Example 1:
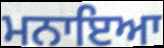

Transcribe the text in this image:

ਮਨਾਇਆ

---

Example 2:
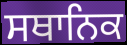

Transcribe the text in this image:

ਸਥਾਨਿਕ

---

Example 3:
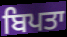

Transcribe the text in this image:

ਬਿਪਤਾ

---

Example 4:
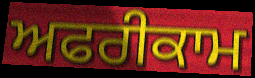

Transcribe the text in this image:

ਅਫਰੀਕਾਮ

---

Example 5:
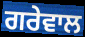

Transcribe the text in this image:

ਗਰੇਵਾਲ